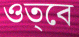
ওত্‌বে